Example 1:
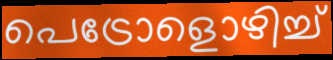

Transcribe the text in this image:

പെട്രോളൊഴിച്ച്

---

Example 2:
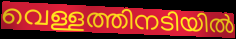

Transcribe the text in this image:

വെള്ളത്തിനടിയിൽ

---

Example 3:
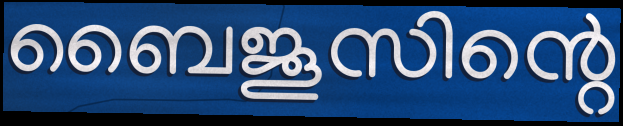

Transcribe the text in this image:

ബൈജൂസിന്റെ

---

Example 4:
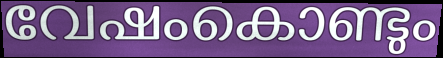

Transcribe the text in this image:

വേഷംകൊണ്ടും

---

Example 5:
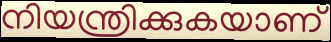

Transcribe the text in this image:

നിയന്ത്രിക്കുകയാണ്